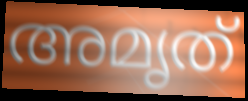
അമൃത്